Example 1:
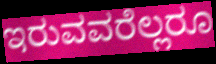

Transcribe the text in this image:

ಇರುವವರೆಲ್ಲರೂ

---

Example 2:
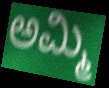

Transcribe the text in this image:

ಅಮ್ಮಿ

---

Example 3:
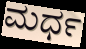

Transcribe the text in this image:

ಮರ್ಧ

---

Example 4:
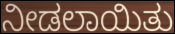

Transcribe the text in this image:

ನೀಡಲಾಯಿತು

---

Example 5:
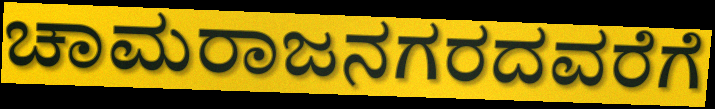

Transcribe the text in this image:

ಚಾಮರಾಜನಗರದವರೆಗೆ